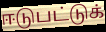
ஈடுபட்டுக்